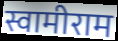
स्वामीराम